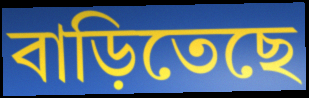
বাড়িতেছে